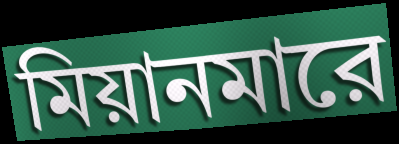
মিয়ানমারে